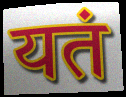
यतं